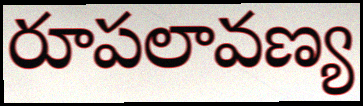
రూపలావణ్య